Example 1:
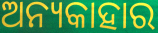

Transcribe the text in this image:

ଅନ୍ୟକାହାର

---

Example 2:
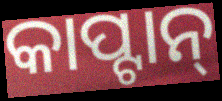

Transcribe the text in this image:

କାପ୍ଟାନ୍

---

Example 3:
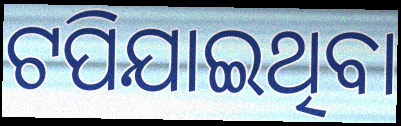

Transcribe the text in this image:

ଟପିଯାଇଥିବା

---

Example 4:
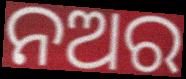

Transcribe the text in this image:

ନଅର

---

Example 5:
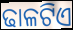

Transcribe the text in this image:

ଢାଳଟିଏ